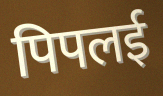
पिपलई